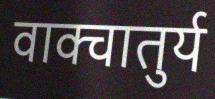
वाक्चातुर्य